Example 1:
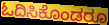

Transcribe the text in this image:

ಓದಿಸಿಕೊಂಡರೂ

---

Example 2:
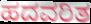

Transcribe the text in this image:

ಹದವರಿತ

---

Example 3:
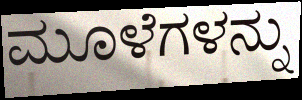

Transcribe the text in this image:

ಮೂಳೆಗಳನ್ನು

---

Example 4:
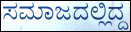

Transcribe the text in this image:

ಸಮಾಜದಲ್ಲಿದ್ದ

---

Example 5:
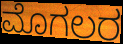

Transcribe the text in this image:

ಮೊಗಲರ